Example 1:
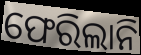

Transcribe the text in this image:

ଫେରିଲାନି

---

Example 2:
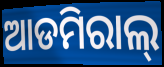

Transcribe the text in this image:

ଆଡମିରାଲ୍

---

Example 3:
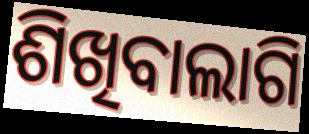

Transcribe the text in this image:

ଶିଖିବାଲାଗି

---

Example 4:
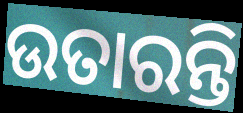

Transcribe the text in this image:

ଉତାରନ୍ତି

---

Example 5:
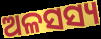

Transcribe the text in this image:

ଅଳସସ୍ୟ